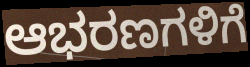
ಆಭರಣಗಳಿಗೆ